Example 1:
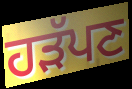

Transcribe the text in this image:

ਹੜੱਪਣ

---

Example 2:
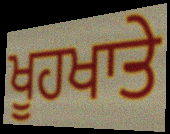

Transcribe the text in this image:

ਖੂਹਖਾਤੇ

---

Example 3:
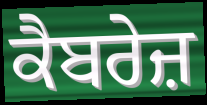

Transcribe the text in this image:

ਕੈਬਰੇਜ਼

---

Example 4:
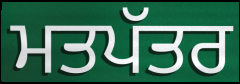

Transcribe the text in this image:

ਮਤਪੱਤਰ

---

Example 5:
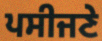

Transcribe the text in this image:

ਪਸੀਜਣੇ